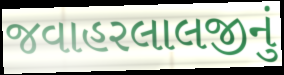
જવાહરલાલજીનું